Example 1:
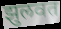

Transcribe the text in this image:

झुलवत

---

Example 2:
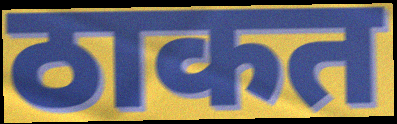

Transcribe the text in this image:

ठाकत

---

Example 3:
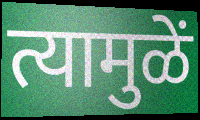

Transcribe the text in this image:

त्यामुळें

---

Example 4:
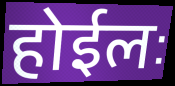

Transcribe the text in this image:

होईलः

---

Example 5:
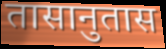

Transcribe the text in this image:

तासानुतास